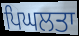
ਪਿਘਲਤਾ